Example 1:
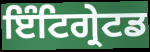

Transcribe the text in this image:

ਇੰਟਿਗ੍ਰੇਟਡ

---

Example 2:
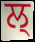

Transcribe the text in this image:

ਲ੍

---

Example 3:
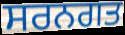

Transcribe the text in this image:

ਸਰਨਗਤ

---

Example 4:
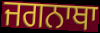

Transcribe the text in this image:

ਜਗਨਾਥਾ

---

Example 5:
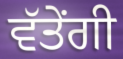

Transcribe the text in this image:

ਵੱਤੇਂਗੀ